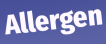
Allergen